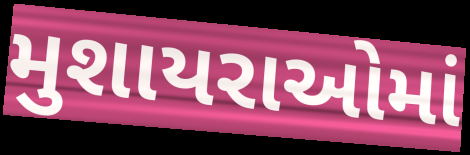
મુશાયરાઓમાં